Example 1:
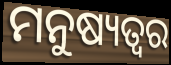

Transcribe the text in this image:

ମନୁଷ୍ୟତ୍ବର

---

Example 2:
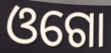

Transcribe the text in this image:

ଓଗୋ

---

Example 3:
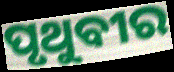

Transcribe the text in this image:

ପୃଥୁବୀର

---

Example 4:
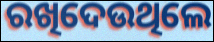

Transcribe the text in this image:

ରଖିଦେଉଥିଲେ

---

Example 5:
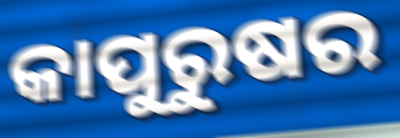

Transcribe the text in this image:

କାପୁରୁଷର